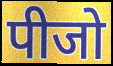
पीजो